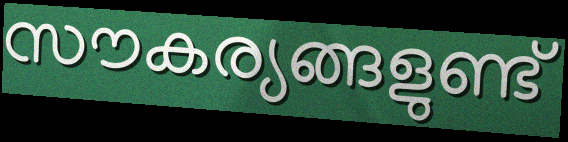
സൗകര്യങ്ങളുണ്ട്